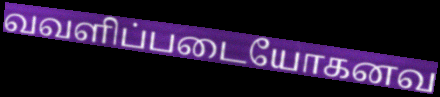
வவளிப்படையோகனவ